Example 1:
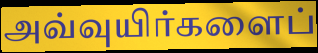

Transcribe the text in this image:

அவ்வுயிர்களைப்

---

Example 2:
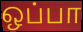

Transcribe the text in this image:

ஒப்பா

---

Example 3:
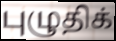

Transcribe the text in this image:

புழுதிக்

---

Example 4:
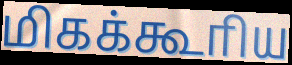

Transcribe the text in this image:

மிகக்கூரிய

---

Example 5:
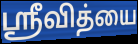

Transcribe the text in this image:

ஸ்ரீவித்யை